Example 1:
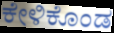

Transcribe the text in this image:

ಕೇಳಿಕೊಂಡ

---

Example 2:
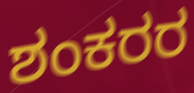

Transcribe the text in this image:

ಶಂಕರರ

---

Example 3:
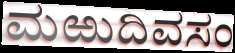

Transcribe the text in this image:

ಮಱುದಿವಸಂ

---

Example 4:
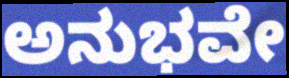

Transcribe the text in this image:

ಅನುಭವೇ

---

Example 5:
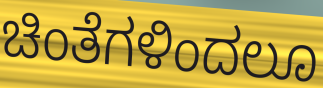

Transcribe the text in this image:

ಚಿಂತೆಗಳಿಂದಲೂ